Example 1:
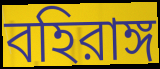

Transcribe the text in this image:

বহিরাঙ্গ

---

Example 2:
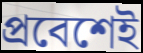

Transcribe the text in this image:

প্রবেশেই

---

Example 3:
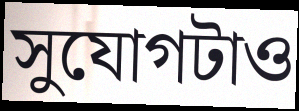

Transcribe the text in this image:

সুযোগটাও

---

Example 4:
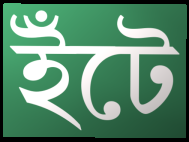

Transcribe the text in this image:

ইঁটে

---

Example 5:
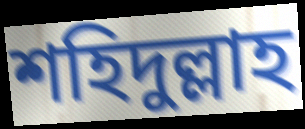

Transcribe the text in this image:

শহিদুল্লাহ